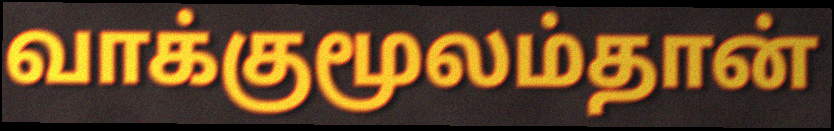
வாக்குமூலம்தான்